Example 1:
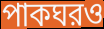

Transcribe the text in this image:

পাকঘরও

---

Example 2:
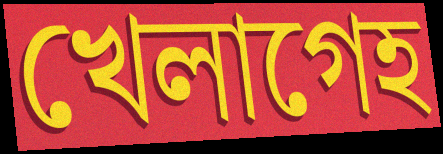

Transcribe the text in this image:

খেলাগেহ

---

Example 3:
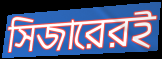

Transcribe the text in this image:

সিজারেরই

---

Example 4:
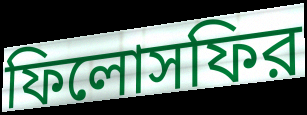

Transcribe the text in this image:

ফিলোসফির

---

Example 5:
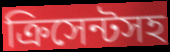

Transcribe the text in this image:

ক্রিসেন্টসহ